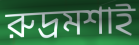
রুদ্রমশাই